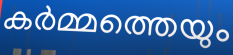
കർമ്മത്തെയും